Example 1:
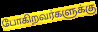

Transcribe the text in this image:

போகிறவர்களுக்கு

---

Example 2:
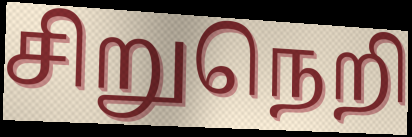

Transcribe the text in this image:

சிறுநெறி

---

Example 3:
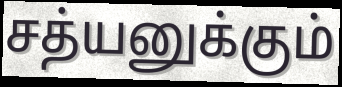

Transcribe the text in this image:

சத்யனுக்கும்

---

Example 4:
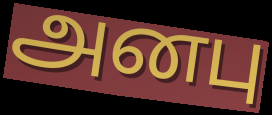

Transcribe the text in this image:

அனபு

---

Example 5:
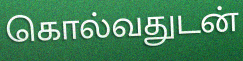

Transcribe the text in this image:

கொல்வதுடன்